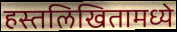
हस्तलिखितामध्ये